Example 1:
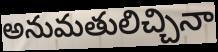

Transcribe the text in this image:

అనుమతులిచ్చినా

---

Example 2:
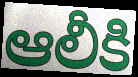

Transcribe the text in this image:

ఆలీకి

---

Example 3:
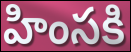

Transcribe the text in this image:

హింసకి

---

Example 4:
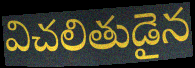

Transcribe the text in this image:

విచలితుడైన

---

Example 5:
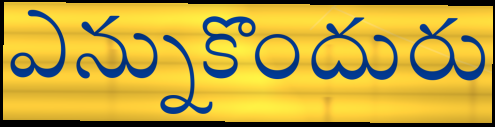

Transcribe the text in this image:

ఎన్నుకొందురు